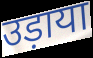
उड़ाया